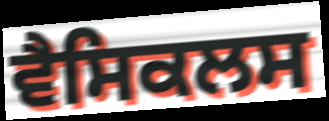
ਵੈਸਿਕਲਸ